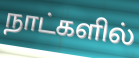
நாட்களில்